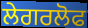
ਲੇਗਰਲੋਫ